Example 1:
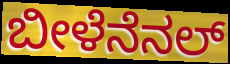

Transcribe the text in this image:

ಬೀಳೆನೆನಲ್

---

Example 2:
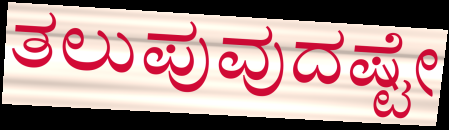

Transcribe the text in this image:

ತಲುಪುವುದಷ್ಟೇ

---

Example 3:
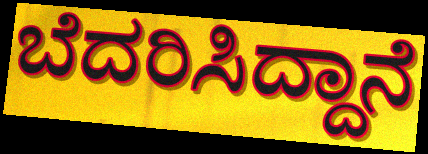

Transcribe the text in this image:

ಬೆದರಿಸಿದ್ದಾನೆ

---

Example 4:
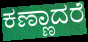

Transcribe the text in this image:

ಕಣ್ಣಾದರೆ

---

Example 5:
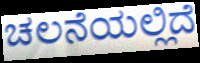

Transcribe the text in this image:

ಚಲನೆಯಲ್ಲಿದೆ